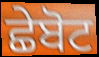
ਛੇਬੋਟ